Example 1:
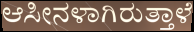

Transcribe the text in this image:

ಆಸೀನಳಾಗಿರುತ್ತಾಳೆ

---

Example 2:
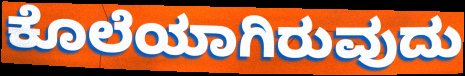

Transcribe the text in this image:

ಕೊಲೆಯಾಗಿರುವುದು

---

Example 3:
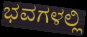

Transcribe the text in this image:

ಭವಗಳಲ್ಲಿ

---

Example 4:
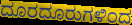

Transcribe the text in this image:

ದೂರದೂರುಗಳಿಂದ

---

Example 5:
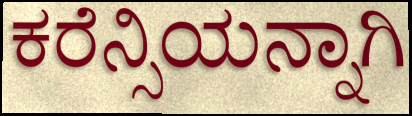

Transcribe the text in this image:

ಕರೆನ್ಸಿಯನ್ನಾಗಿ